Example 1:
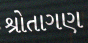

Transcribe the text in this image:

શ્રોતાગણ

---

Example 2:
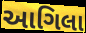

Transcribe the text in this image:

આગિલા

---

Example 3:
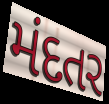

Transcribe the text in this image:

મંદતર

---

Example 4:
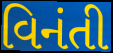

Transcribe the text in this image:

વિનંતી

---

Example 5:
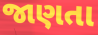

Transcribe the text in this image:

જાણતા